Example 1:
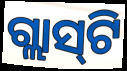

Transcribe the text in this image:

ଗ୍ଲାସ୍‍ଟି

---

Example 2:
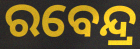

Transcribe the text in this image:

ରବେନ୍ଦ୍ର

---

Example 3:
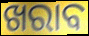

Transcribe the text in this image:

ଖରାବ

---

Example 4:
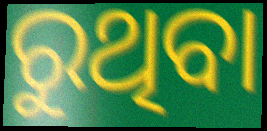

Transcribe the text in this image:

ରୁଥିବା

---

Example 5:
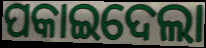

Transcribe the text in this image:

ପକାଇଦେଲା